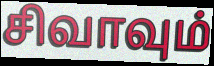
சிவாவும்